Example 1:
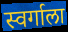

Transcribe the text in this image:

स्वर्गाला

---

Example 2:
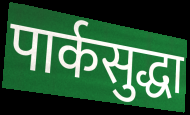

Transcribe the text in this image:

पार्कसुद्धा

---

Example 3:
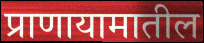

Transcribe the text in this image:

प्राणायामातील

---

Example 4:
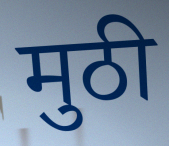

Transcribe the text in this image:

मुठी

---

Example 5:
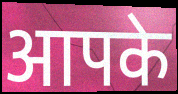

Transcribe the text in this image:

आपके